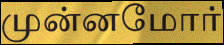
முன்னமோர்